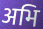
अभि